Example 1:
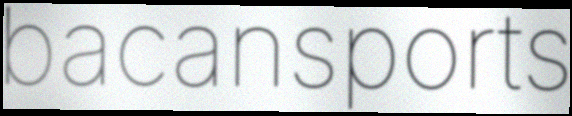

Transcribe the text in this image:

bacansports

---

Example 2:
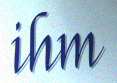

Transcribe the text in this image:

ihm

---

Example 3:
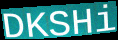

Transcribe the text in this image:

DKSHi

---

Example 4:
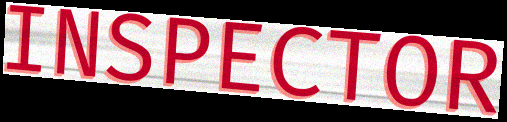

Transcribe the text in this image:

INSPECTOR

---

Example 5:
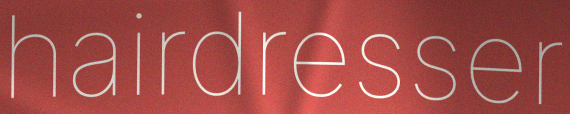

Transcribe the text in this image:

hairdresser